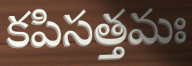
కపిసత్తమః